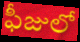
ఫీజులో